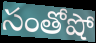
సంతోషో